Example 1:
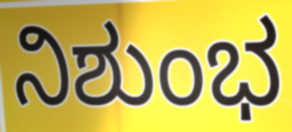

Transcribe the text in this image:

ನಿಶುಂಭ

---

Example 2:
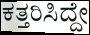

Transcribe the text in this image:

ಕತ್ತರಿಸಿದ್ದೇ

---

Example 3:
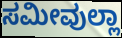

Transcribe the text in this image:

ಸಮೀವುಲ್ಲಾ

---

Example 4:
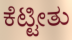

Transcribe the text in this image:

ಕೆಟ್ಟೀತು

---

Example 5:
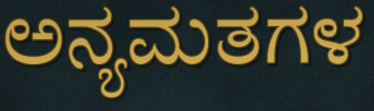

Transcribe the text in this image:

ಅನ್ಯಮತಗಳ